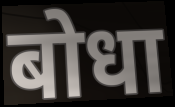
बोधा